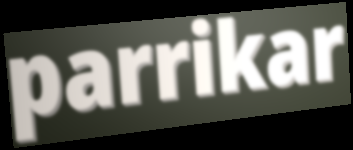
parrikar